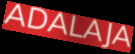
ADALAJA